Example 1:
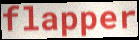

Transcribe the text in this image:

flapper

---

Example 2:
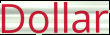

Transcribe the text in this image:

Dollar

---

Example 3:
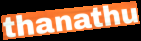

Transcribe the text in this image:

thanathu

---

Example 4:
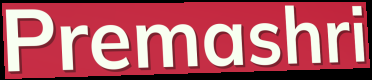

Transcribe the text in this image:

Premashri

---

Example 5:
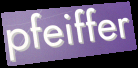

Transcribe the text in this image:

pfeiffer